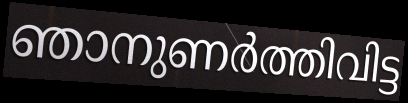
ഞാനുണർത്തിവിട്ട